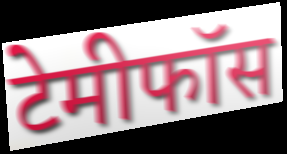
टेमीफॉस